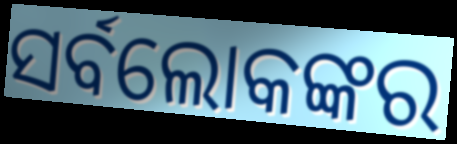
ସର୍ବଲୋକଙ୍କର